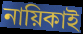
নায়িকাই